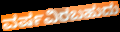
ವರ್ಷವಿರಬಹುದು